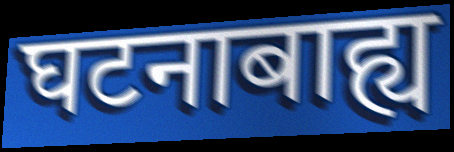
घटनाबाह्य